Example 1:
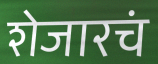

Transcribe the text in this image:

शेजारचं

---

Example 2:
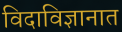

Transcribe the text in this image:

विदाविज्ञानात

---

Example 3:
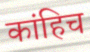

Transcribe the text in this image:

कांहिच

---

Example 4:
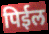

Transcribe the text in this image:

पिईल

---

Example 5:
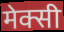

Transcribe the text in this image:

मेक्सी